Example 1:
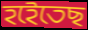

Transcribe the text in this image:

হইেতেছ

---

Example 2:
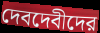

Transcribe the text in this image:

দেবদেবীদের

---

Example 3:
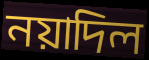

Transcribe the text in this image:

নয়াদিল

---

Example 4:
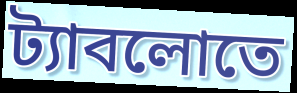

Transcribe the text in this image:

ট্যাবলোতে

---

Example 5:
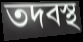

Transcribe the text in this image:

তদবস্থ